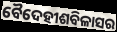
ବୈଦେହୀଶବିଳାସର